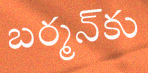
బర్మన్‌కు